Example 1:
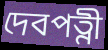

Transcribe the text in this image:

দেবপত্নী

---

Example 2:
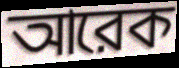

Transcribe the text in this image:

আরেক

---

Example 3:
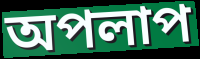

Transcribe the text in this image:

অপলাপ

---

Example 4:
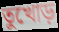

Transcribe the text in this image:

তুখোড়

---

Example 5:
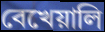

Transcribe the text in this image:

বেখেয়ালি